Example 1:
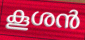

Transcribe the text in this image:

കൂശൻ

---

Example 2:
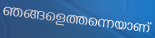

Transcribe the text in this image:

ഞങ്ങളെത്തന്നെയാണ്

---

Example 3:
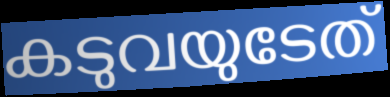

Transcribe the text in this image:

കടുവയുടേത്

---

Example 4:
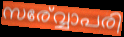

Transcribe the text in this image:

സര്വ്വോപരി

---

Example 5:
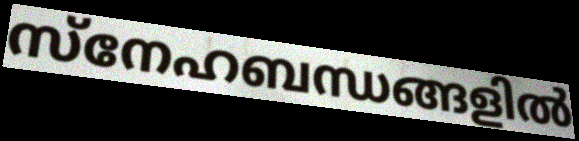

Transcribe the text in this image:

സ്നേഹബന്ധങ്ങളിൽ